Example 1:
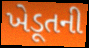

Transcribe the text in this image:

ખેડૂતની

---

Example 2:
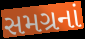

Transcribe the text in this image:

સમગ્રનાં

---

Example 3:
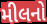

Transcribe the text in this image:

મીલનો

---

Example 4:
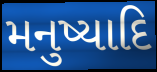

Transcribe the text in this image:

મનુષ્યાદિ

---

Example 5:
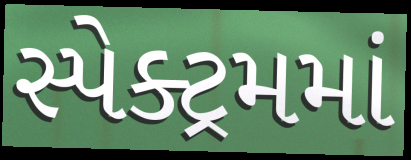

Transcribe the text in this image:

સ્પેક્ટ્રમમાં